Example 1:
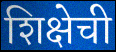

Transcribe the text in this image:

शिक्षेची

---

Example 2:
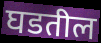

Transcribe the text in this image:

घडतील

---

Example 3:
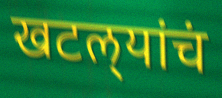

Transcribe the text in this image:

खटल्यांचं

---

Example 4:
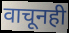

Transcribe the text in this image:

वाचूनही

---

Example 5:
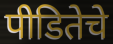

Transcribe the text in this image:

पीडितेचे